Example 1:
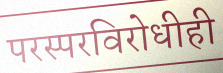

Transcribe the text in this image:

परस्परविरोधीही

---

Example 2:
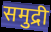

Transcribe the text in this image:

समुद्री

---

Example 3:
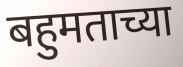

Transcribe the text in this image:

बहुमताच्या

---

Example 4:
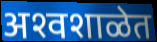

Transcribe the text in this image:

अश्वशाळेत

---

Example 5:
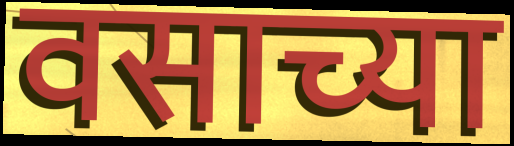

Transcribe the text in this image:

वसाच्या